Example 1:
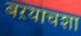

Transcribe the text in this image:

बऱयाचशा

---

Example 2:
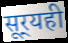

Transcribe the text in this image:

सूर्यही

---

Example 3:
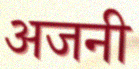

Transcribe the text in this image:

अजनी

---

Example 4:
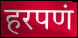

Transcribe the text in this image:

हरपणं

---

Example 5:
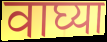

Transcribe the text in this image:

वाघ्या